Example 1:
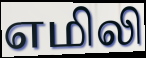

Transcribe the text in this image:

எமிலி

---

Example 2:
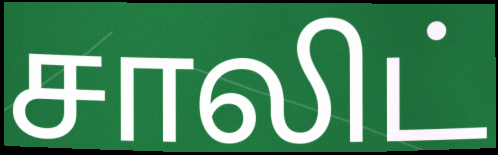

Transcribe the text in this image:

சாலிட்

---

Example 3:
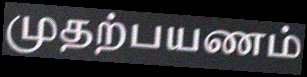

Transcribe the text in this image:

முதற்பயணம்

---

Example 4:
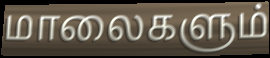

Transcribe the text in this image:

மாலைகளும்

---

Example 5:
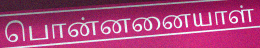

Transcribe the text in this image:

பொன்னனையாள்